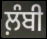
ਲ਼ੰਬੀ